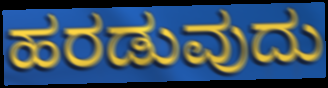
ಹರಡುವುದು